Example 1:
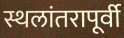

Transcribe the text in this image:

स्थलांतरापूर्वी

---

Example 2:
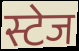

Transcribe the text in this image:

स्टेज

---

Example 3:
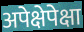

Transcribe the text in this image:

अपेक्षेपेक्षा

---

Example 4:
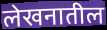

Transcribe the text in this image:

लेखनातील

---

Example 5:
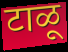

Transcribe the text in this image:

टाळू